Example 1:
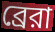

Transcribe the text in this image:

ব্রেরা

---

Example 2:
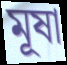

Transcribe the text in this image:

মূষা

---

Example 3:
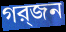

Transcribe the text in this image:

গর্‍জন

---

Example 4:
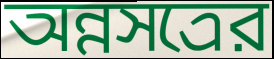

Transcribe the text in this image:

অন্নসত্রের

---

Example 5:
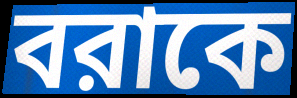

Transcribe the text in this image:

বরাকে